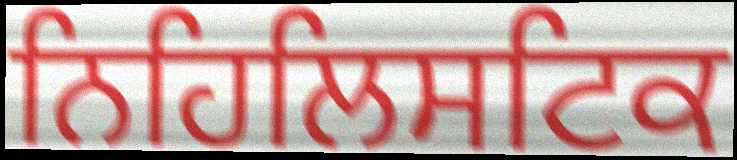
ਨਿਹਿਲਿਸਟਿਕ